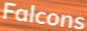
Falcons